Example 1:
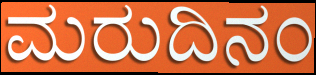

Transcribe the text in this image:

ಮರುದಿನಂ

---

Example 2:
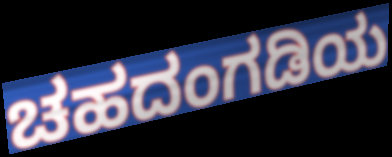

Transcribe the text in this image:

ಚಹದಂಗಡಿಯ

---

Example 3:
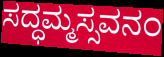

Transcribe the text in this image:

ಸದ್ಧಮ್ಮಸ್ಸವನಂ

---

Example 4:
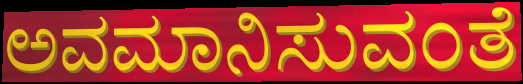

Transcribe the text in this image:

ಅವಮಾನಿಸುವಂತೆ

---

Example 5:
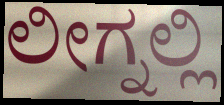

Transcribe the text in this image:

ಲೀಗ್ನಲ್ಲಿ